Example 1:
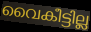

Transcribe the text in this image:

വൈകീട്ടില്ല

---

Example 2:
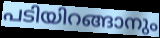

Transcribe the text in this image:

പടിയിറങ്ങാനും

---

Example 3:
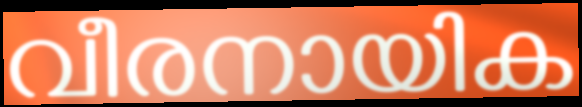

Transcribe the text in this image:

വീരനായിക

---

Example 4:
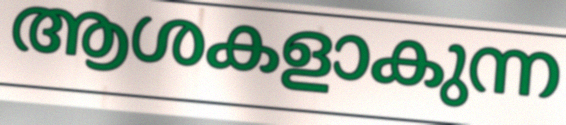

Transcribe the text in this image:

ആശകളാകുന്ന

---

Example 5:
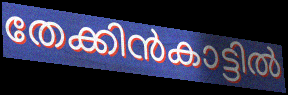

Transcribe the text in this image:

തേക്കിൻകാട്ടിൽ